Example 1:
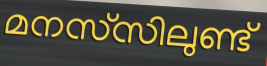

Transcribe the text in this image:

മനസ്‌സിലുണ്ട്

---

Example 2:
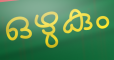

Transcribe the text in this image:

ഒഴുകും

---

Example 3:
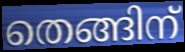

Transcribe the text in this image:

തെങ്ങിന്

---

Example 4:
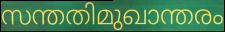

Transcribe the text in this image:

സന്തതിമുഖാന്തരം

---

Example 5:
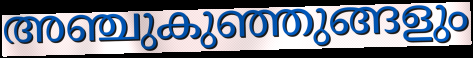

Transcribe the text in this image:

അഞ്ചുകുഞ്ഞുങ്ങളും